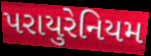
પરાયુરેનિયમ